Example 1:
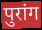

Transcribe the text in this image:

पुरांग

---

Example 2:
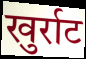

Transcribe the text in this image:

खुर्राट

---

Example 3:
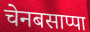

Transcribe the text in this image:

चेनबसाप्पा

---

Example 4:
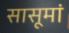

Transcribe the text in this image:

सासूमां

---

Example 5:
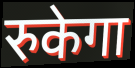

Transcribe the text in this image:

रुकेगा